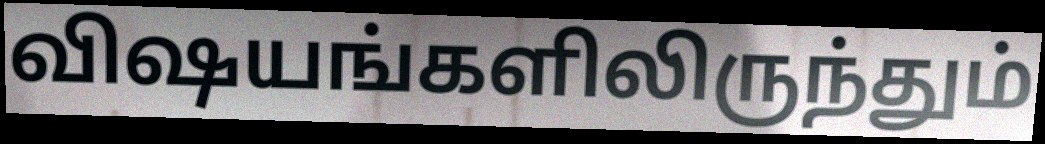
விஷயங்களிலிருந்தும்